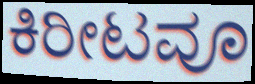
ಕಿರೀಟವೂ